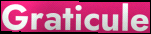
Graticule